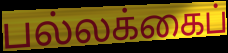
பல்லக்கைப்